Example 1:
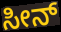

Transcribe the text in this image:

ಸೀನ್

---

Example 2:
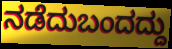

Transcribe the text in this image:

ನಡೆದುಬಂದದ್ದು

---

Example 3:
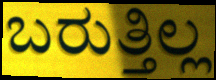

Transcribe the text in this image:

ಬರುತ್ತಿಲ್ಲ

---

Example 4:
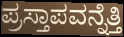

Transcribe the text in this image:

ಪ್ರಸ್ತಾಪವನ್ನೆತ್ತಿ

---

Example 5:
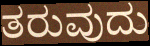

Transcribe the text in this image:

ತರುವುದು